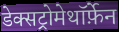
डेक्सट्रोमेथॉर्फ़ेन